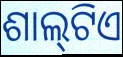
ଶାଲ୍‌ଟିଏ